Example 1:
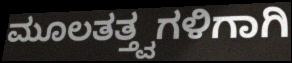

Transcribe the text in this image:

ಮೂಲತತ್ತ್ವಗಳಿಗಾಗಿ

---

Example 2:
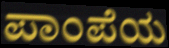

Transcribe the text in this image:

ಪಾಂಪೆಯ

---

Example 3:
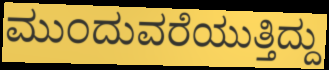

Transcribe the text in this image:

ಮುಂದುವರೆಯುತ್ತಿದ್ದು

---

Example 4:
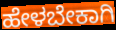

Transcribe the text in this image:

ಹೇಳಬೇಕಾಗಿ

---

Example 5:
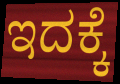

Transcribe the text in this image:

ಇದಕ್ಕೆ